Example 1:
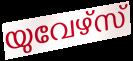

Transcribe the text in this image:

യുവേഴ്സ്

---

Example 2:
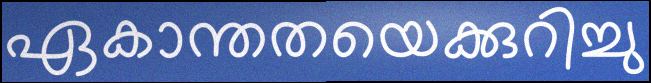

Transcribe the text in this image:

ഏകാന്തതയെക്കുറിച്ചു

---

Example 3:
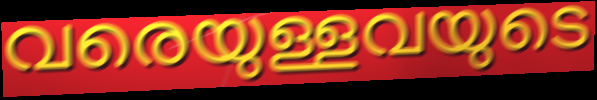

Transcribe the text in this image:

വരെയുള്ളവയുടെ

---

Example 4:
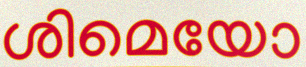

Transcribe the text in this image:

ശിമെയോ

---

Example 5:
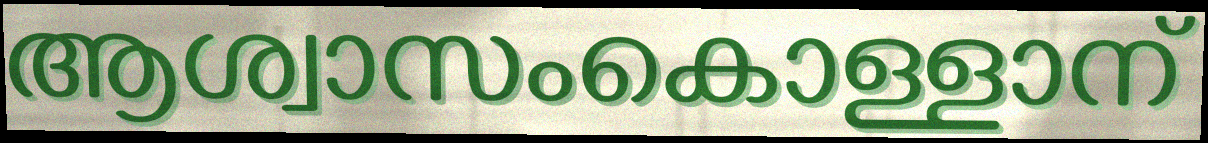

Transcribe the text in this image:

ആശ്വാസംകൊള്ളാന്